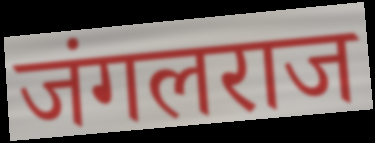
जंगलराज